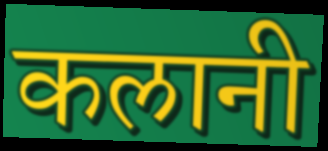
कलानी